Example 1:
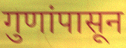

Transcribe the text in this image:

गुणांपासून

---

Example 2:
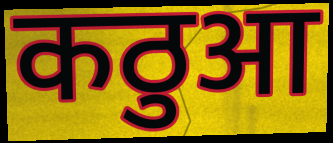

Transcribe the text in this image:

कठुआ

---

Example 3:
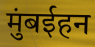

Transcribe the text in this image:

मुंबईहन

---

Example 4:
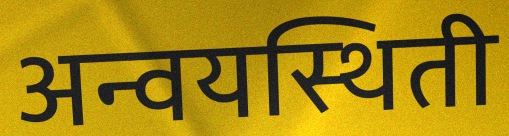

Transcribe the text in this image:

अन्वयस्थिती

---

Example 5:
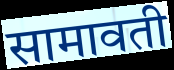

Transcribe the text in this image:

सामावती